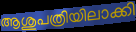
ആശുപത്രിയിലാക്കി